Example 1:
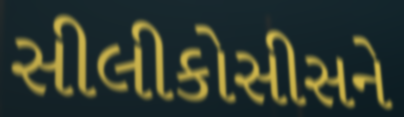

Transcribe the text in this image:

સીલીકોસીસને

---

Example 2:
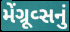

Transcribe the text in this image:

મેંગ્રૂવ્સનું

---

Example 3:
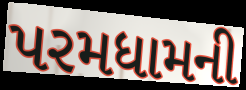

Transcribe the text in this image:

પરમધામની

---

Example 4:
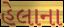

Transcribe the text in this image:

હેલાના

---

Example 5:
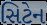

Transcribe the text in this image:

સિટેન